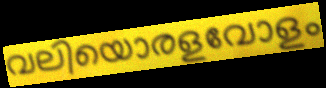
വലിയൊരളവോളം